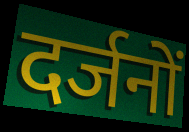
दर्जनों